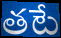
తటే